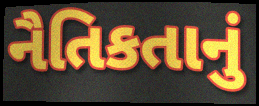
નૈતિકતાનું